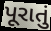
પૂરાતું